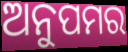
ଅନୁପମର